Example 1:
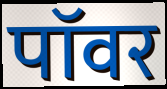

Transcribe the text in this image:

पॉवर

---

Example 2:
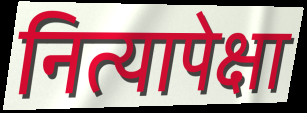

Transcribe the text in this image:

नित्यापेक्षा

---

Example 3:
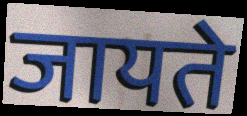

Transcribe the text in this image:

जायते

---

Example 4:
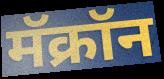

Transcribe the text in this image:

मॅक्रॉन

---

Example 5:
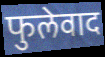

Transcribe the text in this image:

फुलेवाद